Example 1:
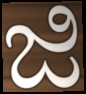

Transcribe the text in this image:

ಜಿ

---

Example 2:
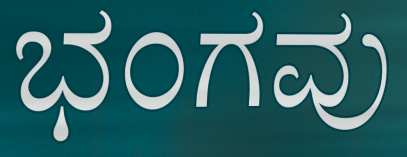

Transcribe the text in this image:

ಭಂಗವು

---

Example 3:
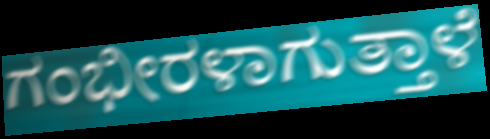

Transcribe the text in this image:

ಗಂಭೀರಳಾಗುತ್ತಾಳೆ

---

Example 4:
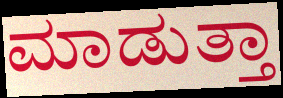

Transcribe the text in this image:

ಮಾಡುತ್ತಾ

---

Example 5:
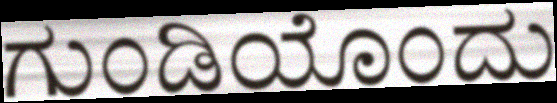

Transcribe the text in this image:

ಗುಂಡಿಯೊಂದು